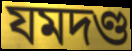
যমদণ্ড